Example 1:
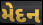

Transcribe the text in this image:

મેદન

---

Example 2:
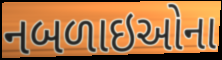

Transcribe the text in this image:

નબળાઇઓના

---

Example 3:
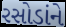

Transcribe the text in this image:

રસોડાંને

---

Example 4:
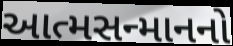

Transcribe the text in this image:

આત્મસન્માનનો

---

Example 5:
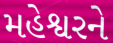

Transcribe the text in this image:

મહેશ્વરને